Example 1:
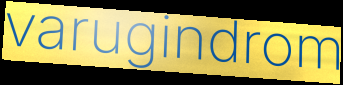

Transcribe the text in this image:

varugindrom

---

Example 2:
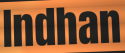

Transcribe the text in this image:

Indhan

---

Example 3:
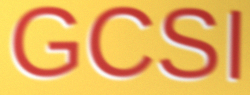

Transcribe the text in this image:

GCSI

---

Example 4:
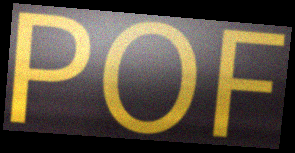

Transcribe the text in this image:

POF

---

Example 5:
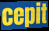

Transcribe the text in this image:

cepit